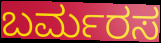
ಬರ್ಮರಸ